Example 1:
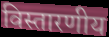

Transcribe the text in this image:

विस्तारणीय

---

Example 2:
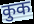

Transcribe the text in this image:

कुक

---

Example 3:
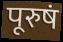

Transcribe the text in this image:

पूरुषं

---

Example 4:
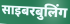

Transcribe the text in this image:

साइबरबुलिंग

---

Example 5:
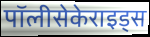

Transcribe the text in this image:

पॉलीसेकेराइड्स